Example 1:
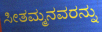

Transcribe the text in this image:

ಸೀತಮ್ಮನವರನ್ನು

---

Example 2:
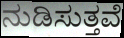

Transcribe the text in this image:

ನುಡಿಸುತ್ತವೆ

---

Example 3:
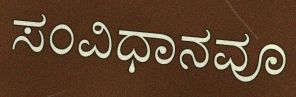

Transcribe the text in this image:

ಸಂವಿಧಾನವೂ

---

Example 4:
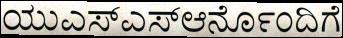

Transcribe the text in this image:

ಯುಎಸ್ಎಸ್ಆರ್ನೊಂದಿಗೆ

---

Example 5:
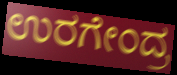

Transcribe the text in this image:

ಉರಗೇಂದ್ರ